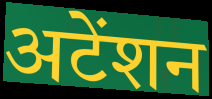
अटेंशन